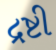
દ્રષ્ટી